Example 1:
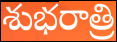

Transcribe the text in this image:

శుభరాత్రి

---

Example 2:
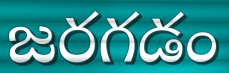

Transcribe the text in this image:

జరగడం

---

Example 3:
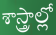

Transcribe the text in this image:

శాస్త్రాల్లో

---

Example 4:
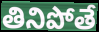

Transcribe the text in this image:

తినిపోతే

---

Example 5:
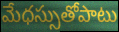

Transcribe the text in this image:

మేధస్సుతోపాటు